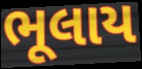
ભૂલાય